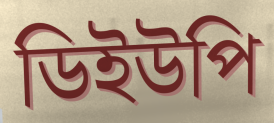
ডিইউপি